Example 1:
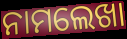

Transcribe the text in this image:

ନାମଲେଖା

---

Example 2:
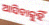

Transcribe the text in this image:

ଆସିବାକୁହିଁ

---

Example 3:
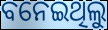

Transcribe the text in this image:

ବନେଇଥିଲୁ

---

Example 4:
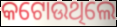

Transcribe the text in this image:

କଟୋଉଥିଲେ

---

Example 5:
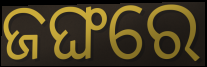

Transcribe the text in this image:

ଜଙ୍ଘରେ